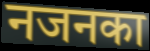
नजनका